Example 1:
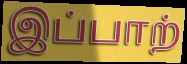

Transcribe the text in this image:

இப்பாற்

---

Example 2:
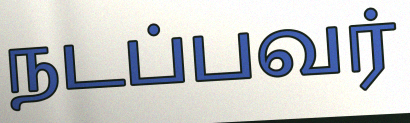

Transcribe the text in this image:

நடப்பவர்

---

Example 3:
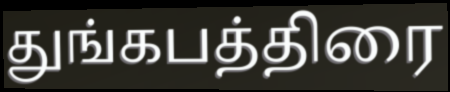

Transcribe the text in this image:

துங்கபத்திரை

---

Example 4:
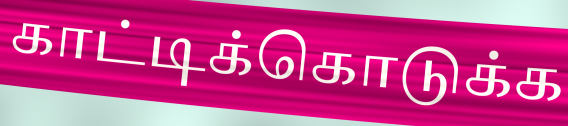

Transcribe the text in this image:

காட்டிக்கொடுக்க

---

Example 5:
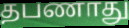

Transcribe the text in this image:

தபணாது